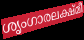
ശൃംഗാരലക്ഷ്മീ